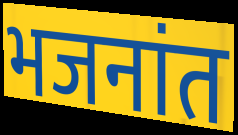
भजनांत